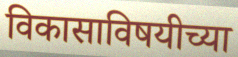
विकासाविषयीच्या